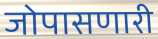
जोपासणारी